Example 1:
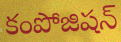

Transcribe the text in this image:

కంపోజిషన్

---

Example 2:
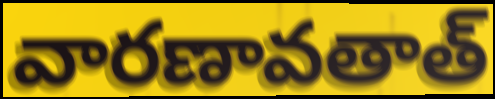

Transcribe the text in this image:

వారణావతాత్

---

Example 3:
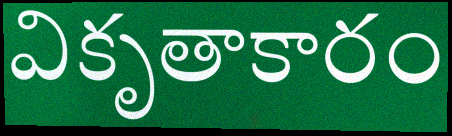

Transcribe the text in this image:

వికృతాకారం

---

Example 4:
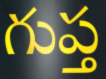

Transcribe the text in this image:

గుప్త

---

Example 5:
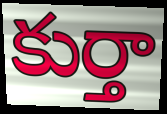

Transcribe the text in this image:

కుర్తా